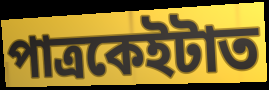
পাত্ৰকেইটাত